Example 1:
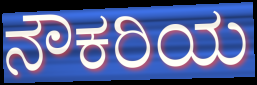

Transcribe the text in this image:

ನೌಕರಿಯ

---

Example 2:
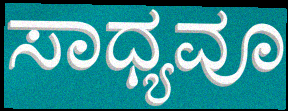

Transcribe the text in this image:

ಸಾಧ್ಯವೂ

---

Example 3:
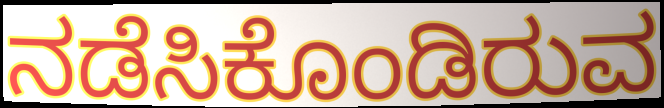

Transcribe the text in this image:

ನಡೆಸಿಕೊಂಡಿರುವ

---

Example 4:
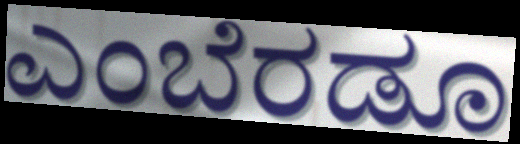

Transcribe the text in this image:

ಎಂಬೆರಡೂ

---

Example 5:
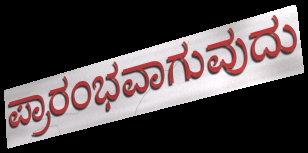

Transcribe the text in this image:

ಪ್ರಾರಂಭವಾಗುವುದು